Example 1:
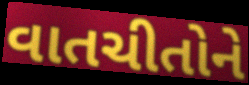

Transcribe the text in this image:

વાતચીતોને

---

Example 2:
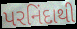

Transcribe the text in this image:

પરનિંદાથી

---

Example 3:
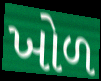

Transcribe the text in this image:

ખોળ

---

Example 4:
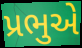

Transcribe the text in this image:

પ્રભુએ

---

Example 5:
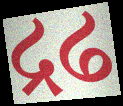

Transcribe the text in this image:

દ્રઢ